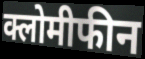
क्लोमीफीन